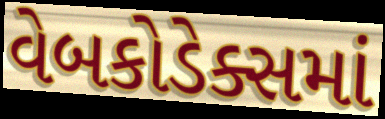
વેબકોડેક્સમાં